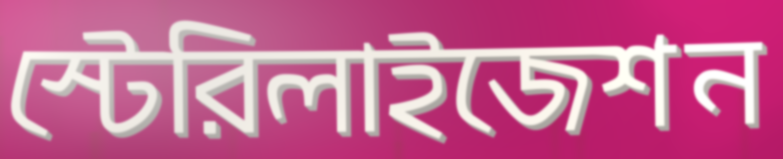
স্টেরিলাইজেশন